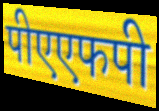
पीएएफपी